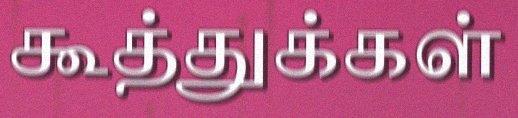
கூத்துக்கள்